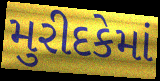
મુરીદકેમાં